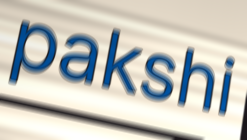
pakshi